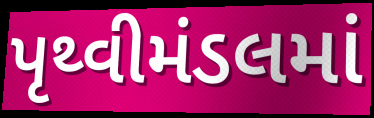
પૃથ્વીમંડલમાં